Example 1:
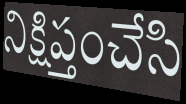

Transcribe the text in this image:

నిక్షిప్తంచేసి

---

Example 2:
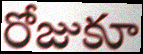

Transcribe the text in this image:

రోజుకూ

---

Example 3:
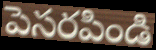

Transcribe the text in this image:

పెసరపిండి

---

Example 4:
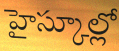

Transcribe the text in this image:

హైస్కూల్లో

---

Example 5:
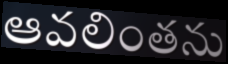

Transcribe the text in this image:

ఆవలింతను